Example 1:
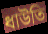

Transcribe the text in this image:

ধাউতি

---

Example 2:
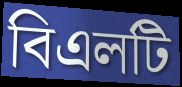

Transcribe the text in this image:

বিএলটি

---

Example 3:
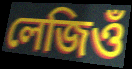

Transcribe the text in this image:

লেজিওঁ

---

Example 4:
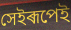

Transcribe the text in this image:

সেইৰূপেই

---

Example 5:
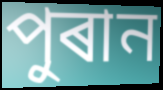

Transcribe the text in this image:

পুৰান